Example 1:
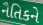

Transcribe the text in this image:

નૈતિકને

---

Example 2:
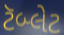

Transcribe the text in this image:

ટૅબ્લેટ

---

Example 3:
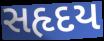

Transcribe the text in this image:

સહૃદય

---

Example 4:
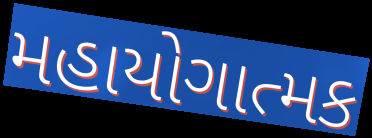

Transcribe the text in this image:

મહાયોગાત્મક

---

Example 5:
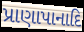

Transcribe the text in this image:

પ્રાણાપાનાદિ